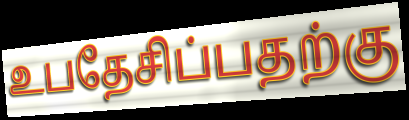
உபதேசிப்பதற்கு